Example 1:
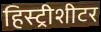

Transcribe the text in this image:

हिस्ट्रीशीटर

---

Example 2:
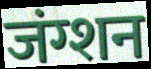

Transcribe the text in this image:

जंग्शन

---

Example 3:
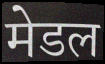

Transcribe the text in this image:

मेडल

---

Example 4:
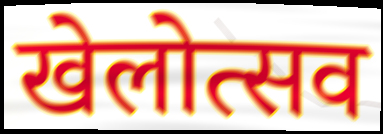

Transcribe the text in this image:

खेलोत्सव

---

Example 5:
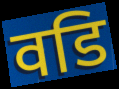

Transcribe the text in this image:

वडि